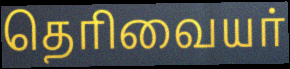
தெரிவையர்